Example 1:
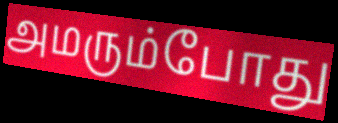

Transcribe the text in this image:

அமரும்போது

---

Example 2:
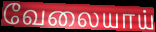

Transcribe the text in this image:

வேலையாய்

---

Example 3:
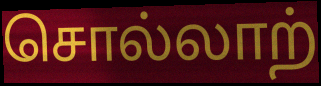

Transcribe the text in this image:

சொல்லாற்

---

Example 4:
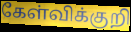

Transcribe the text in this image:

கேள்விக்குறி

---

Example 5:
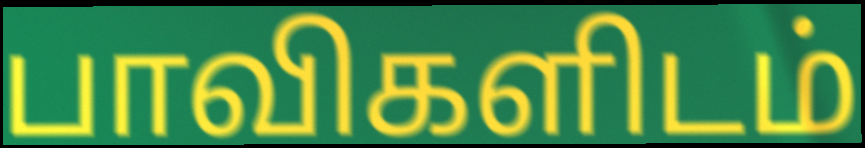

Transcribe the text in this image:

பாவிகளிடம்